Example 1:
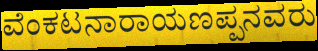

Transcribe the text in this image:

ವೆಂಕಟನಾರಾಯಣಪ್ಪನವರು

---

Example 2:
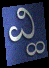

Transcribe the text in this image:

ವ್ಹಿ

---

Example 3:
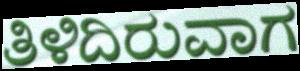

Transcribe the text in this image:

ತಿಳಿದಿರುವಾಗ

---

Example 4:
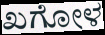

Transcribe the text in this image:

ಖಗೋಳ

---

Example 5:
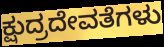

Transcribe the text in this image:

ಕ್ಷುದ್ರದೇವತೆಗಳು